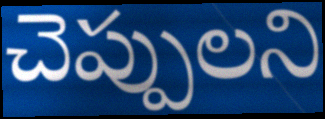
చెప్పులని